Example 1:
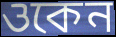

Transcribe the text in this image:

ওকেন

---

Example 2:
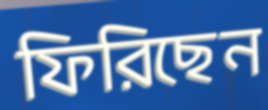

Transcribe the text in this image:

ফিরিছেন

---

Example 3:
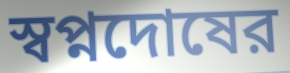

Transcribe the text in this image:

স্বপ্নদোষের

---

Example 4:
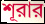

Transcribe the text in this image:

শূরার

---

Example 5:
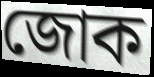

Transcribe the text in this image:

জোক